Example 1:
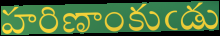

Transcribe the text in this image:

హరిణాంకుఁడు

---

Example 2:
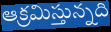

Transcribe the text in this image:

ఆక్రమిస్తున్నది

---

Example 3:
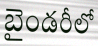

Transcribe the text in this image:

బైండరీలో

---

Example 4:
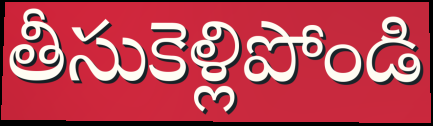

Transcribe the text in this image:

తీసుకెళ్లిపోండి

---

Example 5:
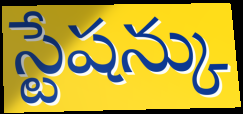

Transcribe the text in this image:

స్టేషన్కు